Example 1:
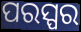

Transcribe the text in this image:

ପରସ୍ପର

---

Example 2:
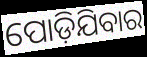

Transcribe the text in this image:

ପୋଡ଼ିଯିବାର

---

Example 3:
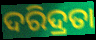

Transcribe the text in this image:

ଦରିଦ୍ରତା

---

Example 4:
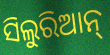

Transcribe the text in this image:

ସିଲୁରିଆନ୍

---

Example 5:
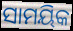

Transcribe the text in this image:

ସାମୟିକ